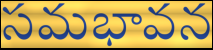
సమభావన